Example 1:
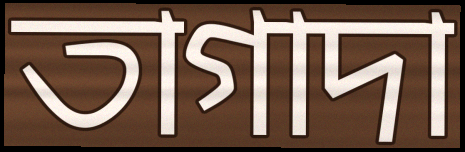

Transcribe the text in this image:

তাগাদা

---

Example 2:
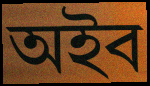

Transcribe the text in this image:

অইব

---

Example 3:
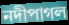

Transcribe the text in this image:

নদীপাগল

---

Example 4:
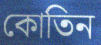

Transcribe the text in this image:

কোতিন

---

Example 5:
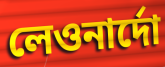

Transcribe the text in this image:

লেওনার্দো